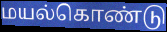
மயல்கொண்டு